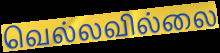
வெல்லவில்லை